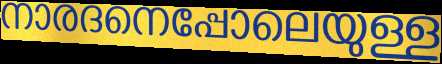
നാരദനെപ്പോലെയുള്ള